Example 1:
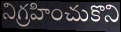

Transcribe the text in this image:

నిగ్రహించుకొని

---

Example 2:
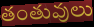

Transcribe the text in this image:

తంతువులు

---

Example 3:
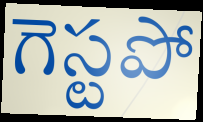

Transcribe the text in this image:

గెస్టపో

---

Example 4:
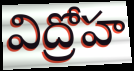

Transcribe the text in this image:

విద్రోహ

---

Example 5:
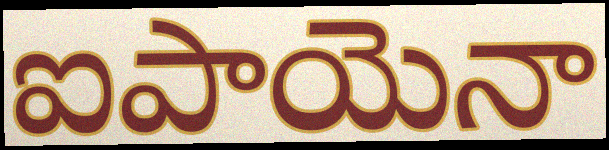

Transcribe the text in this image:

ఐపాయెనా